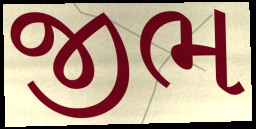
જીભ